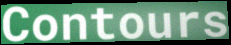
Contours